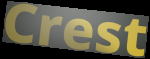
Crest